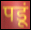
पडूं